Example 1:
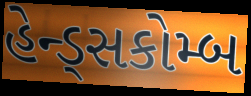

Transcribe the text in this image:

હેન્ડ્સકોમ્બ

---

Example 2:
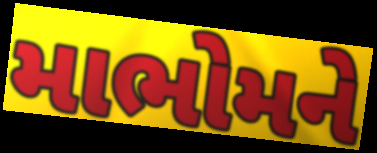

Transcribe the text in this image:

માભોમને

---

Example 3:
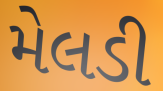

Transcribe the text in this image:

મેલડી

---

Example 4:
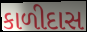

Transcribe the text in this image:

કાળીદાસ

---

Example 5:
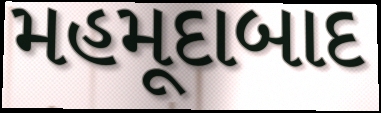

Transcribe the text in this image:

મહમૂદાબાદ